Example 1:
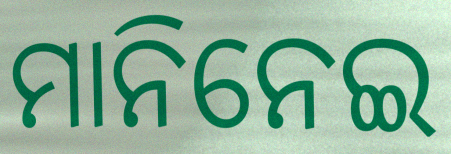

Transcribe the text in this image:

ମାନିନେଇ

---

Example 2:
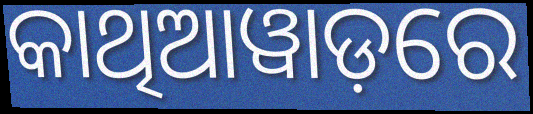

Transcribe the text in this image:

କାଥିଆୱାଡ଼ରେ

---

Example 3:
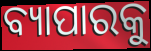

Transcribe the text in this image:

ବ୍ୟାପାରକୁ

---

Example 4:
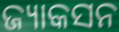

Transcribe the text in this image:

ଜ୍ୟାକସନ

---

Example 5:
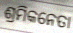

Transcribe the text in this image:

ଶ୍ରମିକନେତା